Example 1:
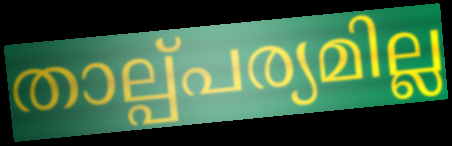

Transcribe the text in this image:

താല്പ്പര്യമില്ല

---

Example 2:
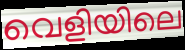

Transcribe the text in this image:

വെളിയിലെ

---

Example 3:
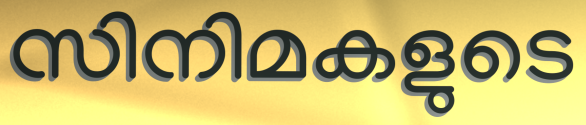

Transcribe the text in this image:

സിനിമകളുടെ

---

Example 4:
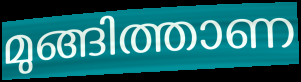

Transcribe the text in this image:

മുങ്ങിത്താണ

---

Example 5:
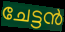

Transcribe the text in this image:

ചേട്ടൻ